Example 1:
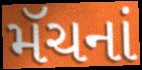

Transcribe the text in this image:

મૅચનાં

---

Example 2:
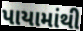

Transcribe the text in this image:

પાયામાંથી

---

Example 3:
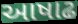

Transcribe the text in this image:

આષાઢ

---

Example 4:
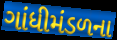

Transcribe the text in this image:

ગાંધીમંડળના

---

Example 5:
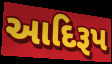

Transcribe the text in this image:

આદિરૂપ